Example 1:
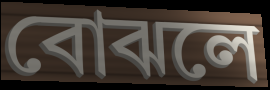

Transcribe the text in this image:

বোঝলে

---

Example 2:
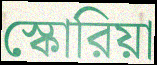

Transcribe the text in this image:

স্কোরিয়া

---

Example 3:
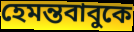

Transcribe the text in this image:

হেমন্তবাবুকে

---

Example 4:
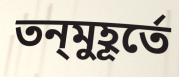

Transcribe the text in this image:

তন্‌মুহূর্তে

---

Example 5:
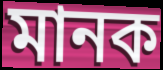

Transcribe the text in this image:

মানক